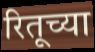
रितूच्या